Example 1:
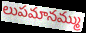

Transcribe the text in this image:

లుపమానమ్ము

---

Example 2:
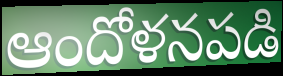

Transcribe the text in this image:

ఆందోళనపడి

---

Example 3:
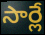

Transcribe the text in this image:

సార్లే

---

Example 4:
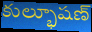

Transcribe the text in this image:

కుల్భూషణ్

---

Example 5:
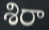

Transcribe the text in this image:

శిరా